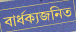
বার্ধক্যজনিত